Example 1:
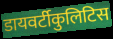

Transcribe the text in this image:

डायवर्टीकुलिटिस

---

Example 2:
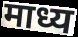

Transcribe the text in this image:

माध्य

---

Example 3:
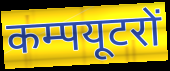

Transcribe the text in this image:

कम्पयूटरों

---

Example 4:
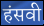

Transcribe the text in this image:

हंसवी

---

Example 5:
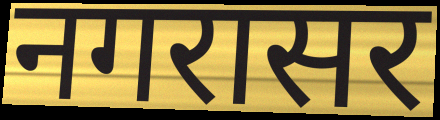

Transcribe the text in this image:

नगरासर